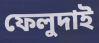
ফেলুদাই